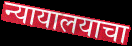
न्यायालयाचा